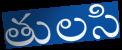
తులసి